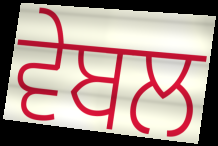
ਵੇਬਲ